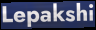
Lepakshi